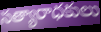
సత్యారాధకులు